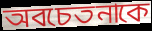
অবচেতনাকে